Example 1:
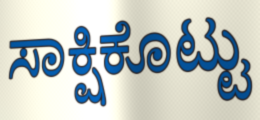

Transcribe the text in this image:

ಸಾಕ್ಷಿಕೊಟ್ಟು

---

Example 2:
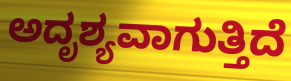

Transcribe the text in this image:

ಅದೃಶ್ಯವಾಗುತ್ತಿದೆ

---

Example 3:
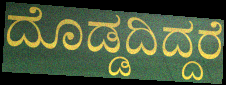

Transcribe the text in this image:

ದೊಡ್ಡದಿದ್ದರೆ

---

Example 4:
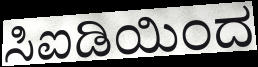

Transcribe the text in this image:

ಸಿಐಡಿಯಿಂದ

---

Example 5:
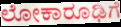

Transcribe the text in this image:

ಲೋಕಾರೂಢಿಗೆ